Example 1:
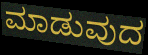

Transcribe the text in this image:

ಮಾಡುವುದ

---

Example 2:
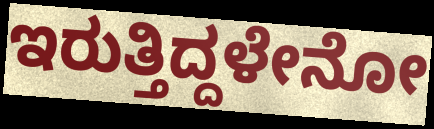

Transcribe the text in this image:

ಇರುತ್ತಿದ್ದಳೇನೋ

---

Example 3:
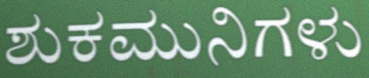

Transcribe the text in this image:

ಶುಕಮುನಿಗಳು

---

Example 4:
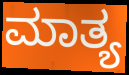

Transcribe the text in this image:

ಮಾತ್ಯ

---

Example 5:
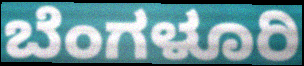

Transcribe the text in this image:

ಬೆಂಗಳೂರಿ